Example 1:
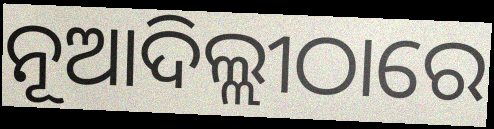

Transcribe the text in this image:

ନୂଆଦିଲ୍ଲୀଠାରେ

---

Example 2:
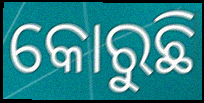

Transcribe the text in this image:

କୋରୁଛି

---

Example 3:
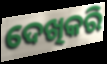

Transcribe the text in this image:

ଦେଖିକରି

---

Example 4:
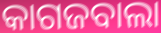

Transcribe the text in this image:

କାଗଜବାଲା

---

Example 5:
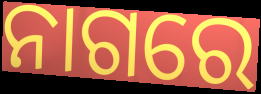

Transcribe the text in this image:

ନାଗରେ